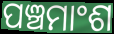
ପଞ୍ଚମାଂଶ